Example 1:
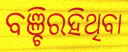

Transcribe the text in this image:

ବଞ୍ଚିରହିଥିବା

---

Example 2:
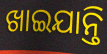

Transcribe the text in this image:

ଖାଇଯାନ୍ତି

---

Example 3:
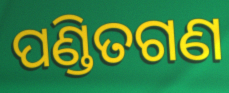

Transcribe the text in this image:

ପଣ୍ଡିତଗଣ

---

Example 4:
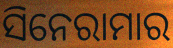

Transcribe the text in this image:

ସିନେରାମାର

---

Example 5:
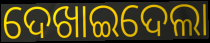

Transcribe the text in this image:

ଦେଖାଇଦେଲା